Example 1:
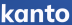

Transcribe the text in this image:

kanto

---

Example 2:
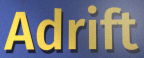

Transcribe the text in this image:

Adrift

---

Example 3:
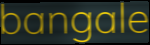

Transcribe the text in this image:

bangale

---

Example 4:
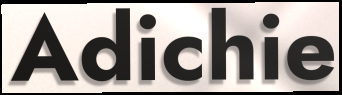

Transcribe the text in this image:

Adichie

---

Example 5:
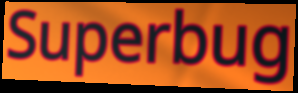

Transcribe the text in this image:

Superbug